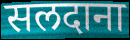
सलदाना